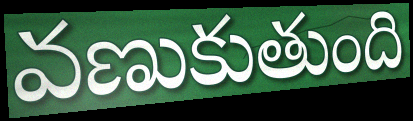
వణుకుతుంది